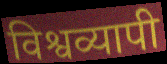
विश्वव्यापी